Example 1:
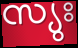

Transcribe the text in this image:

സ്യുഃ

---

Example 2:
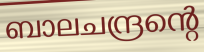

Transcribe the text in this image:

ബാലചന്ദ്രന്റെ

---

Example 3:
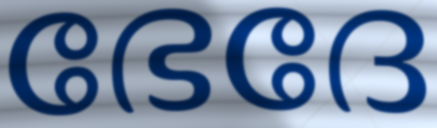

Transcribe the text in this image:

ഭേദേ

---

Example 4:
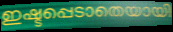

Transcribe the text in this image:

ഇഷ്ടപ്പെടാതെയായി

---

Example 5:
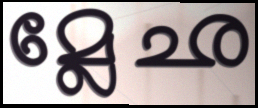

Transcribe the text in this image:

മ്ലേഛ